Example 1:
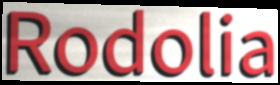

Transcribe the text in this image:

Rodolia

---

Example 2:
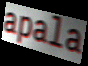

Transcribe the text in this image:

apala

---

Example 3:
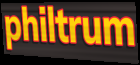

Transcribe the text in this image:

philtrum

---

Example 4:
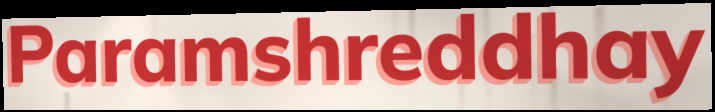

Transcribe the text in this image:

Paramshreddhay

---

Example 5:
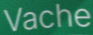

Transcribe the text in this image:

Vache